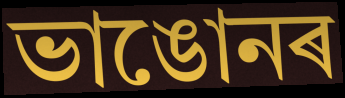
ভাঙোনৰ